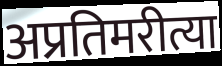
अप्रतिमरीत्या